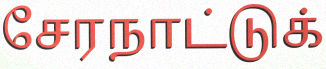
சேரநாட்டுக்